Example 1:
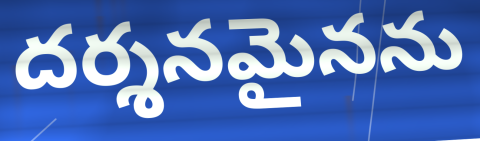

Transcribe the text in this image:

దర్శనమైనను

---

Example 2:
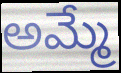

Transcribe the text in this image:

అమ్మే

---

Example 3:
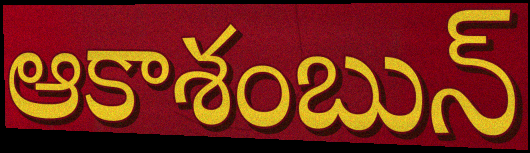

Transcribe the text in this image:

ఆకాశంబున్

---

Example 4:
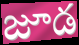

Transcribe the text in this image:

జూడ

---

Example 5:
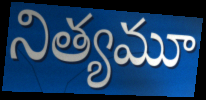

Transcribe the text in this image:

నిత్యమూ